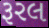
રૂરલ